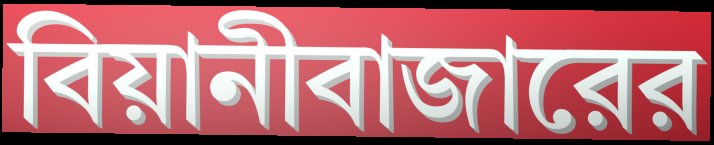
বিয়ানীবাজারের